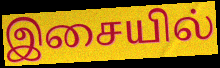
இசையில்